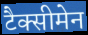
टैक्सीमेन